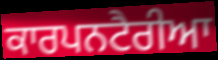
ਕਾਰਪਨਟੈਰੀਆ